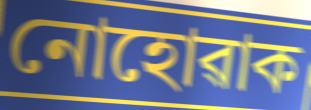
নোহোৱাক